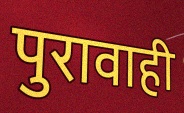
पुरावाही